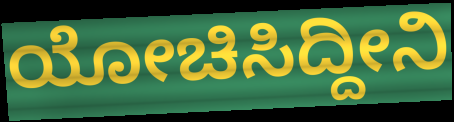
ಯೋಚಿಸಿದ್ದೀನಿ